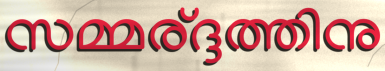
സമ്മര്ദ്ദത്തിനു